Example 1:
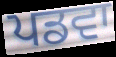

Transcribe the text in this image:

ਪਡਵਾ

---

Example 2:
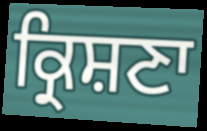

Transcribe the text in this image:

ਕ੍ਰਿਸ਼ਣਾ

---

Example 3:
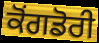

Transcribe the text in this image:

ਕੋਂਗਡੋਰੀ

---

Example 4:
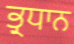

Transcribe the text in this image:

ਭ੍ਰਧਾਨ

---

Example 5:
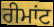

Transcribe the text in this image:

ਰੀਮਾਂਟ